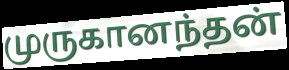
முருகானந்தன்